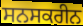
ਸਨਸਕਰੀਨ